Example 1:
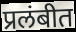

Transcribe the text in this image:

प्रलंबीत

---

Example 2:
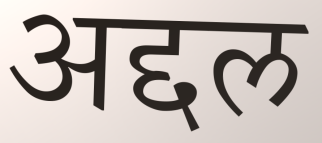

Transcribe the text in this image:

अद्दल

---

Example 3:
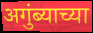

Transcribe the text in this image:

अगुंब्याच्या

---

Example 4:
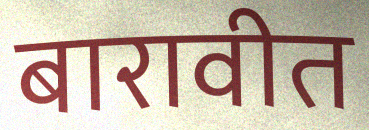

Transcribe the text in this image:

बारावीत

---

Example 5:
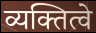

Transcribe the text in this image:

व्यक्तित्वे